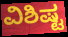
ವಿಶಿಷ್ಟ